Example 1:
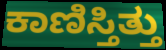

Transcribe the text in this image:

ಕಾಣಿಸ್ತಿತ್ತು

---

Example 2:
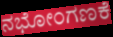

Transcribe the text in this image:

ನಭೋಂಗಣಕೆ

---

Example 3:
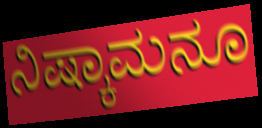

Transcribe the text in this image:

ನಿಷ್ಕಾಮನೂ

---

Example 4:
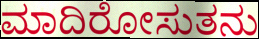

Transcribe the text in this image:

ಮಾದಿರೋಸುತನು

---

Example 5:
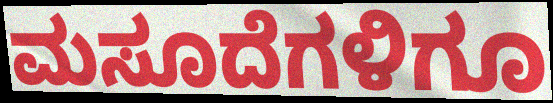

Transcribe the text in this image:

ಮಸೂದೆಗಳಿಗೂ